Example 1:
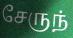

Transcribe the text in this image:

சேருந்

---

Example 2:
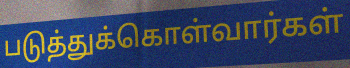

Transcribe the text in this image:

படுத்துக்கொள்வார்கள்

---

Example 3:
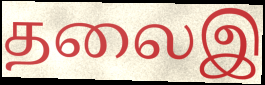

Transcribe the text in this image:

தலைஇ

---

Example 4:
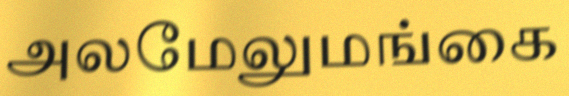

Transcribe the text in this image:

அலமேலுமங்கை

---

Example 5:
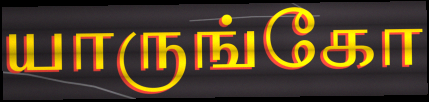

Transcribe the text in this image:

யாருங்கோ